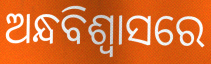
ଅନ୍ଧବିଶ୍ବାସରେ